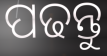
ପଢନ୍ତୁ